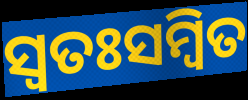
ସ୍ୱତଃସମ୍ବିତ